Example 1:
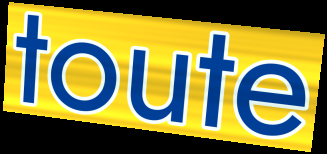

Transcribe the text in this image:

toute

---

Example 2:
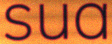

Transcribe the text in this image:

sua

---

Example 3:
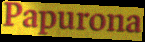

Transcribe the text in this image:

Papurona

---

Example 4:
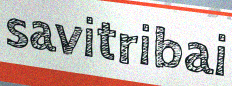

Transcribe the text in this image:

savitribai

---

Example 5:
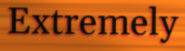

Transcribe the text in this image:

Extremely